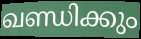
ഖണ്ഡിക്കും